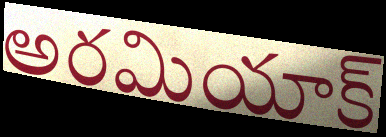
అరమియాక్